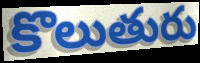
కొలుతురు